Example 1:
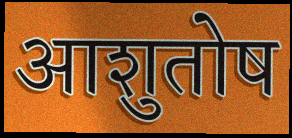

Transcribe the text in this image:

आशुतोष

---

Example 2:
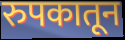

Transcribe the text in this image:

रुपकातून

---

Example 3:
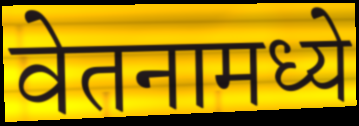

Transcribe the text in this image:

वेतनामध्ये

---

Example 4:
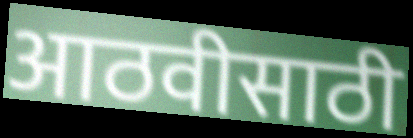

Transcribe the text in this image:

आठवीसाठी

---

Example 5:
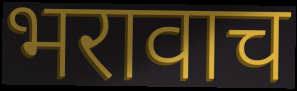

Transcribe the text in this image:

भरावाच